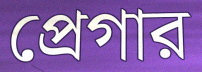
প্রেগার